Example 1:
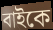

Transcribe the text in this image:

বাইকে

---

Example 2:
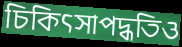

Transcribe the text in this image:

চিকিৎসাপদ্ধতিও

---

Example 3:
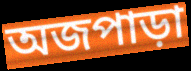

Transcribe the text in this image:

অজপাড়া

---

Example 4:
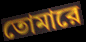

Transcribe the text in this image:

তোমারে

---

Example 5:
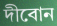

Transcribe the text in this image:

দীবোন